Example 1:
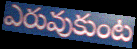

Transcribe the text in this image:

ఎరువుకుంట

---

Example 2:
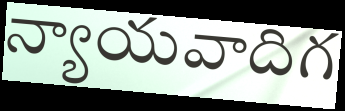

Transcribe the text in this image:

న్యాయవాదిగ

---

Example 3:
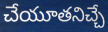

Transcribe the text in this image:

చేయూతనిచ్చే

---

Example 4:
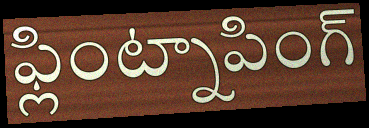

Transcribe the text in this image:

ఫ్లింట్నాపింగ్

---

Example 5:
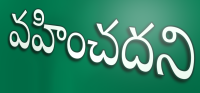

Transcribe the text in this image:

వహించదని